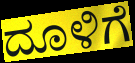
ದೂಳಿಗೆ